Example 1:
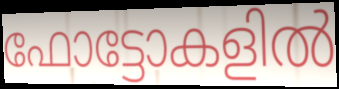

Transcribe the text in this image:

ഫോട്ടോകളിൽ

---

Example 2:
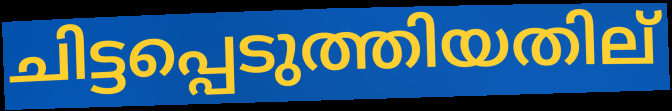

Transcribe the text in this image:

ചിട്ടപ്പെടുത്തിയതില്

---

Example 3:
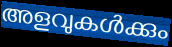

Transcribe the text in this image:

അളവുകൾക്കും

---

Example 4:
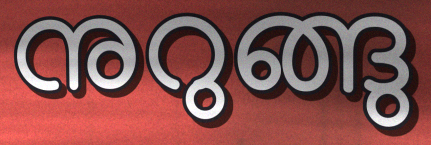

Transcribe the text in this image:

നുറുങ്ങു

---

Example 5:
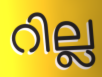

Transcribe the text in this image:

റില്ല